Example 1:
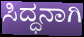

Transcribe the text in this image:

ಸಿದ್ಧನಾಗಿ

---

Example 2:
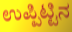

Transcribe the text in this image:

ಉಪ್ಪಿಟ್ಟಿನ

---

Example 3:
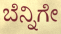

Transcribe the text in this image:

ಬೆನ್ನಿಗೇ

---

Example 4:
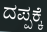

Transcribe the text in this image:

ದಪ್ಪಕ್ಕೆ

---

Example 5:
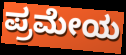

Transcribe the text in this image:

ಪ್ರಮೇಯ